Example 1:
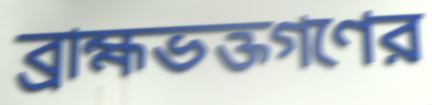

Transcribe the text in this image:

ব্রাহ্মভক্তগণের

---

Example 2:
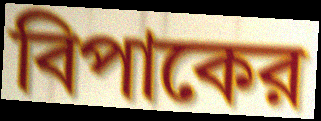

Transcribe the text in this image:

বিপাকের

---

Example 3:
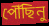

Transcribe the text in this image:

পৌঁছিনু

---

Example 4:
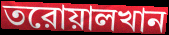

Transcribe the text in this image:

তরোয়ালখান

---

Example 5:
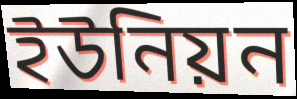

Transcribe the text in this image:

ইউনিয়ন